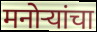
मनोर्‍यांचा